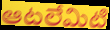
ఆటలేమిటి